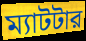
ম্যাটটার